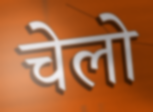
चेलो